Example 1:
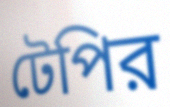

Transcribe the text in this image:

টেপির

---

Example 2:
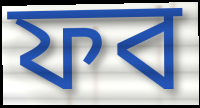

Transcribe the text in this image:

ফব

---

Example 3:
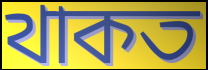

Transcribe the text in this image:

থাকত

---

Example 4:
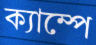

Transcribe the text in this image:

ক্যাম্পে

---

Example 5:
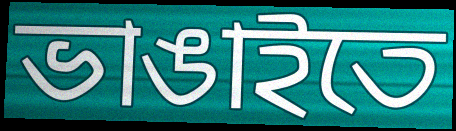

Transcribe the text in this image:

ভাঙাইতে